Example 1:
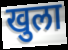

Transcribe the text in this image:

खुला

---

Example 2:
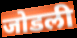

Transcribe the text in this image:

जोडली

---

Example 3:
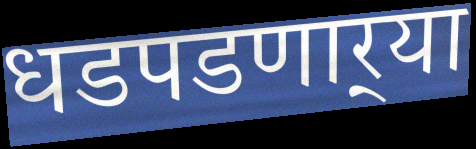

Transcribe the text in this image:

धडपडणार्या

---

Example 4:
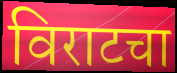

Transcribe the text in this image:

विराटचा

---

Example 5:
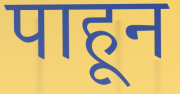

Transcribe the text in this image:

पाहून